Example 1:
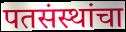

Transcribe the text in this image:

पतसंस्थांचा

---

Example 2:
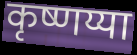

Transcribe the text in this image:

कृष्णय्या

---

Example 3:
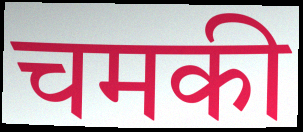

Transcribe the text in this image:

चमकी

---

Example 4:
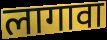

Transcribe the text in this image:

लागावा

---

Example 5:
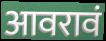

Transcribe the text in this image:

आवरावं